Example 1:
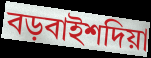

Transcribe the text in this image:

বড়বাইশদিয়া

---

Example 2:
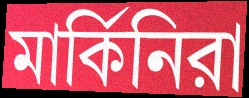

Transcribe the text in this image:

মার্কিনিরা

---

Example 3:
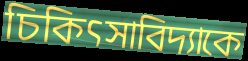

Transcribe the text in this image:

চিকিৎসাবিদ্যাকে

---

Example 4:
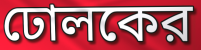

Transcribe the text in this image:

ঢোলকের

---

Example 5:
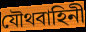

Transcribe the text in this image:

যৌথবাহিনী